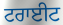
ਟਰਾਈਟ